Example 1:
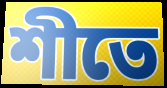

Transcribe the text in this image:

শীতে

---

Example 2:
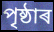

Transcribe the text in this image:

পৃষ্ঠাৰ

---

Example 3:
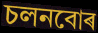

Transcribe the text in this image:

চলনবোৰ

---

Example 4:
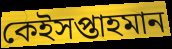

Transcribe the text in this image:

কেইসপ্তাহমান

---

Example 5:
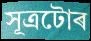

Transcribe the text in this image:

সূত্ৰটোৰ